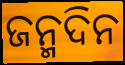
ଜନ୍ମଦିନ